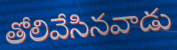
తోలివేసినవాడు